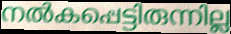
നൽകപ്പെട്ടിരുന്നില്ല